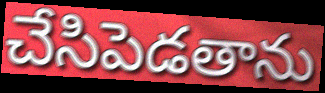
చేసిపెడతాను